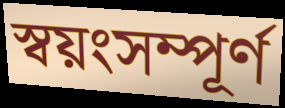
স্বয়ংসম্পূৰ্ণ